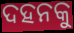
ଦହନକୁ